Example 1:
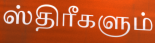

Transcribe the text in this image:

ஸ்திரீகளும்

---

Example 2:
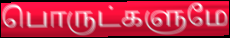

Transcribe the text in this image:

பொருட்களுமே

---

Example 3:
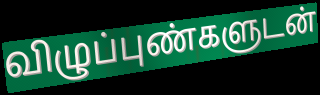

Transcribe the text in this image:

விழுப்புண்களுடன்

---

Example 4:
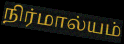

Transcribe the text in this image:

நிர்மால்யம்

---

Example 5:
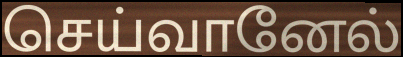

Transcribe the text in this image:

செய்வானேல்